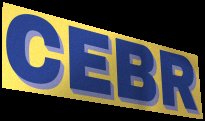
CEBR